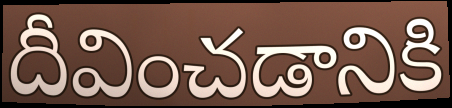
దీవించడానికి